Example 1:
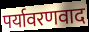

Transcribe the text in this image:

पर्यावरणवाद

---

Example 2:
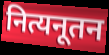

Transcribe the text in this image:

नित्यनूतन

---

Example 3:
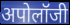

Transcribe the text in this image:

अपोलॉजी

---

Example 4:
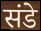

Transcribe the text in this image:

संडे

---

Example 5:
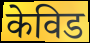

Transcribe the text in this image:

केविड